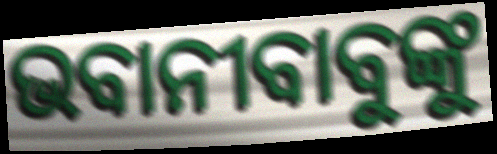
ଭବାନୀବାବୁଙ୍କୁ